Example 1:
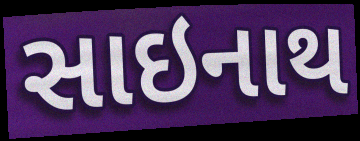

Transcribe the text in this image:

સાઇનાથ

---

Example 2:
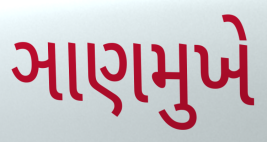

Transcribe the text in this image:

ઞાણમુખે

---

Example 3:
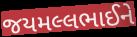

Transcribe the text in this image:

જયમલ્લભાઈને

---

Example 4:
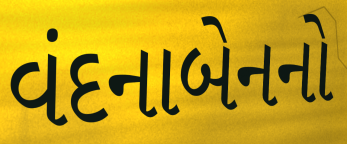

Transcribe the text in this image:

વંદનાબેનનો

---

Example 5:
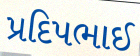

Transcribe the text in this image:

પ્રદિપભાઈ